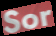
Sor